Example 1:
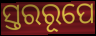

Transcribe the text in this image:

ସ୍ତରରୂପେ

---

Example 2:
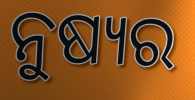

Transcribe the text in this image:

ନୁଷ୍ୟର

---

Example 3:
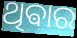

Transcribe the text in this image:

ଥିଵାର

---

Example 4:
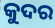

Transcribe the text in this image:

କୁଦର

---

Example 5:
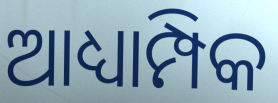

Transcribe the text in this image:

ଆଧ୍ୟାମ୍ପିକ